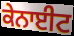
ਕੇਨਾਈਟ